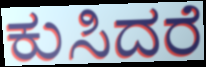
ಕುಸಿದರೆ